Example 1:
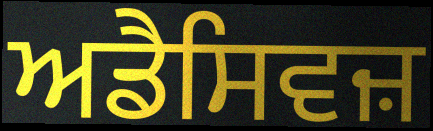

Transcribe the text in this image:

ਅਡੈਸਿਵਜ਼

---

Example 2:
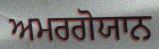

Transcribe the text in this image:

ਅਮਰਗੋਯਾਨ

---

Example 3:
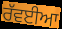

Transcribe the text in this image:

ਰੱਵਈਆ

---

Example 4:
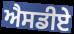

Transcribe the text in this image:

ਐਸਡੀਏ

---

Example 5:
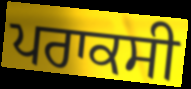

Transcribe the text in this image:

ਪਰਾਕਸੀ